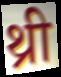
थ्री